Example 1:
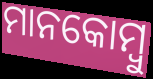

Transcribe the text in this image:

ମାନକୋମ୍ବୁ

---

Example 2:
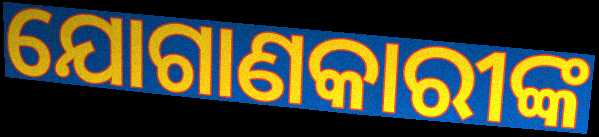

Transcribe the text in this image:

ଯୋଗାଣକାରୀଙ୍କ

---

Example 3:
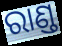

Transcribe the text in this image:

ରାଣ୍ଡ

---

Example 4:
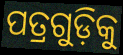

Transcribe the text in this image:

ପତ୍ରଗୁଡ଼ିକୁ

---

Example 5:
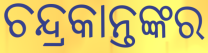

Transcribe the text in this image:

ଚନ୍ଦ୍ରକାନ୍ତଙ୍କର